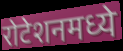
रोटेशनमध्ये